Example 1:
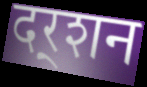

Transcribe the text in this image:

दर्शन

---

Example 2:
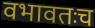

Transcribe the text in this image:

वभावतःच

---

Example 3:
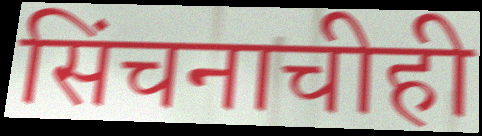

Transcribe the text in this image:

सिंचनाचीही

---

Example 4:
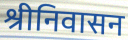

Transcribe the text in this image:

श्रीनिवासन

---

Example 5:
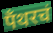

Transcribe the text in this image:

पँथरचं